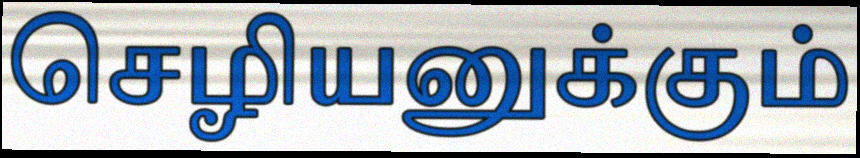
செழியனுக்கும்